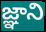
జ్ఞాని